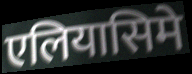
एलियासिमे